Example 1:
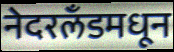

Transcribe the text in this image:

नेदरलँडमधून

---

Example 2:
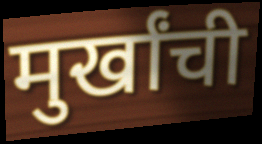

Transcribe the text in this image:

मुर्खांची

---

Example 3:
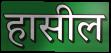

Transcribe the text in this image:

हासील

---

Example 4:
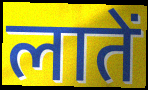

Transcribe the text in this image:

लातें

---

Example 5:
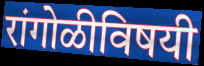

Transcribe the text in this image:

रांगोळीविषयी